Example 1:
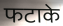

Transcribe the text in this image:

फटाके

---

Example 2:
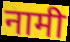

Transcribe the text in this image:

नामी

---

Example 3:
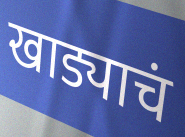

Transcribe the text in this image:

खाड्याचं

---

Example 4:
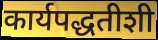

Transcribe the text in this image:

कार्यपद्धतीशी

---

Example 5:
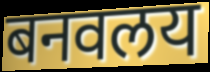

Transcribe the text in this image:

बनवलय